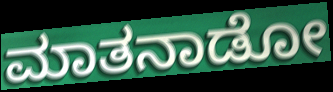
ಮಾತನಾಡೋ